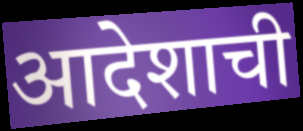
आदेशाची